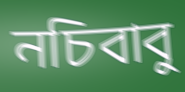
নচিবাবু